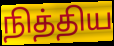
நித்திய